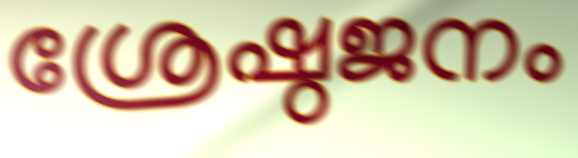
ശ്രേഷ്ഠജനം